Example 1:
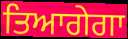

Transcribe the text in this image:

ਤਿਆਗੇਗਾ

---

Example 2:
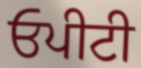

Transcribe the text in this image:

ਓਪੀਟੀ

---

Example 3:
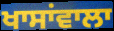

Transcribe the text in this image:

ਖਾਸਾਂਵਾਲਾ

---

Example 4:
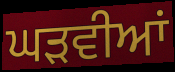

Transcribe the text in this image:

ਘੜਵੀਆਂ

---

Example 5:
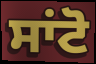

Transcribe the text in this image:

ਸਾਂਟੋ